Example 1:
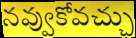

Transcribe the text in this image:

నవ్వుకోవచ్చు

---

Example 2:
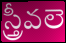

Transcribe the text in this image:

స్త్రీవలె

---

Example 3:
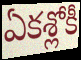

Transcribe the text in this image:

ఏకశ్లోకీ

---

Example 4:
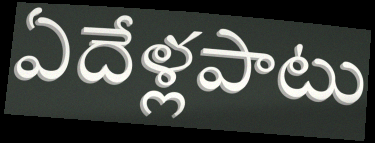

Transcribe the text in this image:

ఏదేళ్లపాటు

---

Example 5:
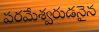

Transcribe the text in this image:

పరమేశ్వరుడనైన